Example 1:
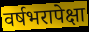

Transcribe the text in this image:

वर्षभरापेक्षा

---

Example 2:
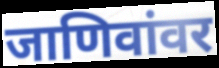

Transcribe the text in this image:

जाणिवांवर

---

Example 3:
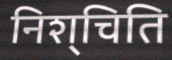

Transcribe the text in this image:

निश्चिति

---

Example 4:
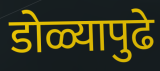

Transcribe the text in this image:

डोळ्यापुढे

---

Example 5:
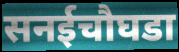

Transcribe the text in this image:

सनईचौघडा